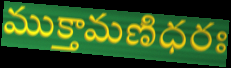
ముక్తామణిధరః